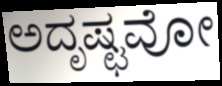
ಅದೃಷ್ಟವೋ